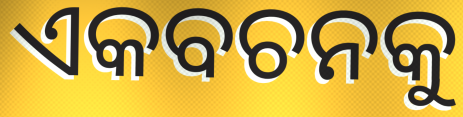
ଏକବଚନକୁ